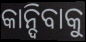
କାନ୍ଦିବାକୁ